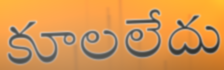
కూలలేదు